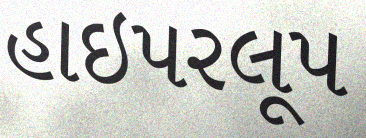
હાઇપરલૂપ